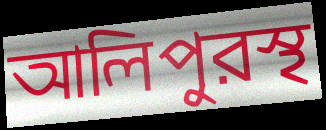
আলিপুরস্থ